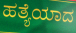
ಹತ್ಯೆಯಾದ